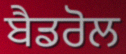
ਬੈਡਰੋਲ